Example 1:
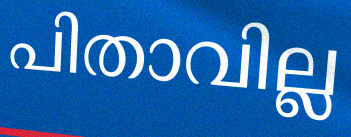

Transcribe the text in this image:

പിതാവില്ല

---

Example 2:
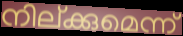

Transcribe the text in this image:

നില്ക്കുമെന്ന്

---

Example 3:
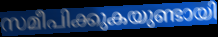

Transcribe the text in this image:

സമീപിക്കുകയുണ്ടായി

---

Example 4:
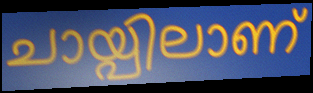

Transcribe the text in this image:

ചായ്പിലാണ്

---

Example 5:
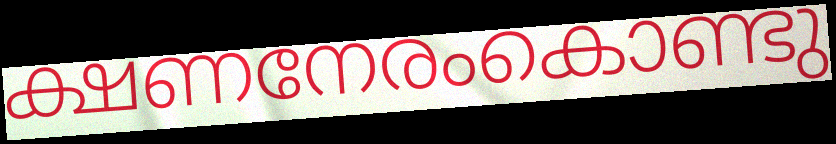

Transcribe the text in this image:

ക്ഷണനേരംകൊണ്ടു